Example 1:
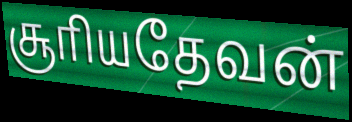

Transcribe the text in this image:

சூரியதேவன்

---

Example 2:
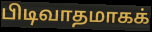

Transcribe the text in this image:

பிடிவாதமாகக்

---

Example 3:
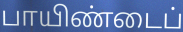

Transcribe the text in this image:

பாயிண்டைப்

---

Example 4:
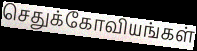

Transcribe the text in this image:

செதுக்கோவியங்கள்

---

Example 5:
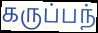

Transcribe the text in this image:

கருப்பந்